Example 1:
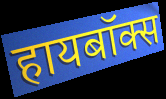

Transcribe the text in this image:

हायबॉक्स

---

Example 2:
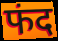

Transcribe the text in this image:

फंद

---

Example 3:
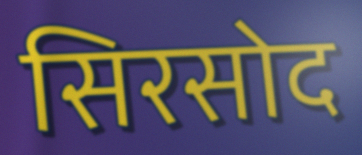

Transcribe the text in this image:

सिरसोद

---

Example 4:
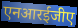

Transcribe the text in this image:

एनआरईजीए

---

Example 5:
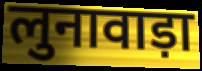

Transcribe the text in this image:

लुनावाड़ा